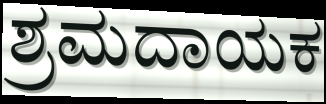
ಶ್ರಮದಾಯಕ